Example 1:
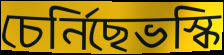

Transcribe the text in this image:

চেৰ্নিছেভস্কি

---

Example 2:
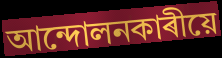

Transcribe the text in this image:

আন্দোলনকাৰীয়ে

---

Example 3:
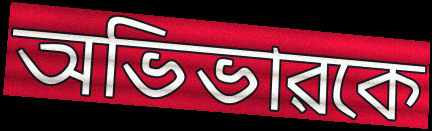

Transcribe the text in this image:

অভিভাৱকে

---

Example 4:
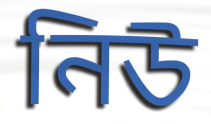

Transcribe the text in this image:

নিউ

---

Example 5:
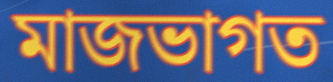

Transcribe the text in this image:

মাজভাগত